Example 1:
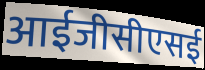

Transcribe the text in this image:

आईजीसीएसई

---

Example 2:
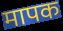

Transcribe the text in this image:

मापक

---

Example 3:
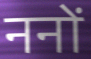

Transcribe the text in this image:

ननों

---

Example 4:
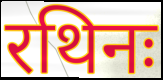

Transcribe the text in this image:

रथिनः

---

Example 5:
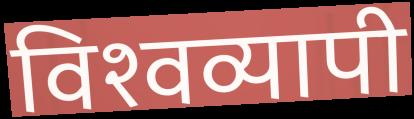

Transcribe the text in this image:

विश्वव्यापी